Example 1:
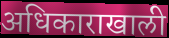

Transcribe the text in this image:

अधिकाराखाली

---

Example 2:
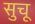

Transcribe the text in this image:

सुचू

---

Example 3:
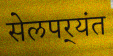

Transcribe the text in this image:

सेलपर्यंत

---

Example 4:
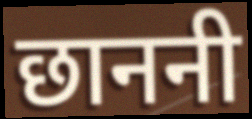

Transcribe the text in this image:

छाननी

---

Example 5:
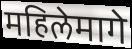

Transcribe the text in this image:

महिलेमागे